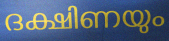
ദക്ഷിണയും